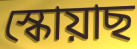
স্কোয়াছ